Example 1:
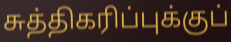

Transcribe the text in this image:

சுத்திகரிப்புக்குப்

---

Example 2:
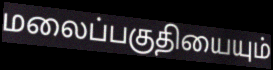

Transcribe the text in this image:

மலைப்பகுதியையும்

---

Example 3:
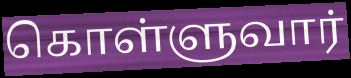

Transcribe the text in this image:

கொள்ளுவார்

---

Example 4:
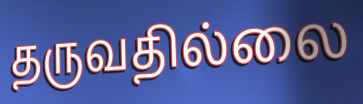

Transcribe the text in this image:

தருவதில்லை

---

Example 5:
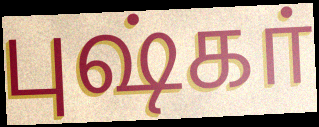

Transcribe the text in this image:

புஷ்கர்